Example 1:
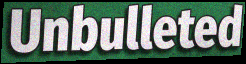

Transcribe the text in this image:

Unbulleted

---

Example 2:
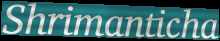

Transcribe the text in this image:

Shrimanticha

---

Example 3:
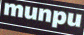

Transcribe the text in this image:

munpu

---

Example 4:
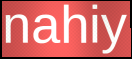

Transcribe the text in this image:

nahiy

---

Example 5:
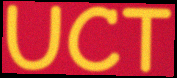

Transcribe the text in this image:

UCT